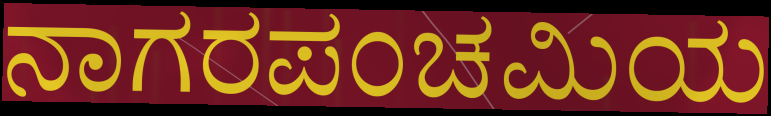
ನಾಗರಪಂಚಮಿಯ